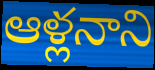
ఆళ్లనాని